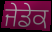
ਜੇਡੇਕ